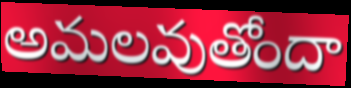
అమలవుతోందా